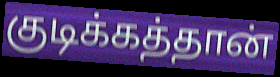
குடிக்கத்தான்